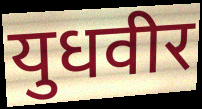
युधवीर